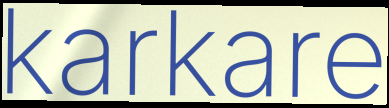
karkare